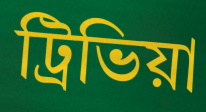
ট্রিভিয়া